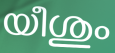
യീശും